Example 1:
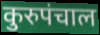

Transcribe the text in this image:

कुरुपंचाल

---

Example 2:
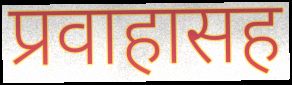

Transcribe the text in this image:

प्रवाहासह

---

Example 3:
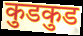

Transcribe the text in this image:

कुडकुड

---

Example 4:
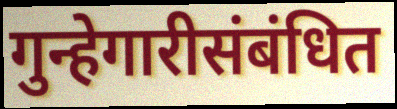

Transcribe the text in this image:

गुन्हेगारीसंबंधित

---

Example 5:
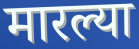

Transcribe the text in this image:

मारल्या